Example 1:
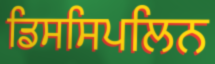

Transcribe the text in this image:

ਡਿਸਸਿਪਲਿਨ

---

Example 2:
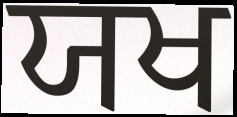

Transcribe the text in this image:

ਯਖ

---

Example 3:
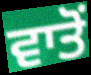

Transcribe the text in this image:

ਵਾਤੋਂ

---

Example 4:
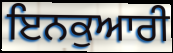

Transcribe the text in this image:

ਇਨਕੁਆਰੀ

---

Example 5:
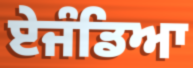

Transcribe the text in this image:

ਏਜੰਡਿਆ